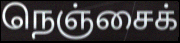
நெஞ்சைக்